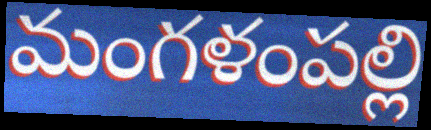
మంగళంపల్లి